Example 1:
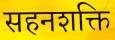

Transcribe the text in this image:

सहनशक्ति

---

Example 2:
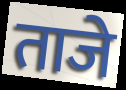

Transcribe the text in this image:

ताजे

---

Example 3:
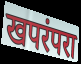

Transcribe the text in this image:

खपरंपरा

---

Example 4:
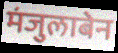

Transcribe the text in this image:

मंजुलाबेन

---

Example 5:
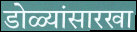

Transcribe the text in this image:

डोळ्यांसारखा